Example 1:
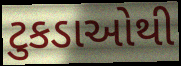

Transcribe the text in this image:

ટુકડાઓથી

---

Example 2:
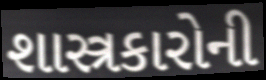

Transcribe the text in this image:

શાસ્ત્રકારોની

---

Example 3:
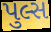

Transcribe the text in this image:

પુલ્સ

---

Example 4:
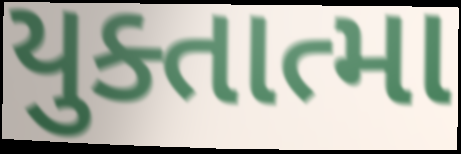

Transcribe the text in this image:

યુક્તાત્મા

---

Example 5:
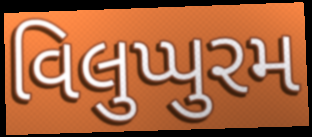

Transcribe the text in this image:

વિલુપ્પુરમ